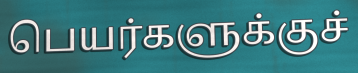
பெயர்களுக்குச்